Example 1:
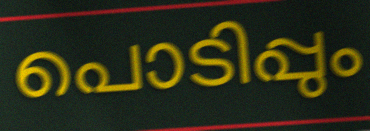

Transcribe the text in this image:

പൊടിപ്പും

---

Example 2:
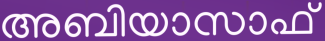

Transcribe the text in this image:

അബിയാസാഫ്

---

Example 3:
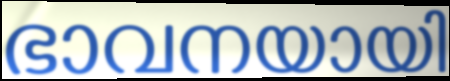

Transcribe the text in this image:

ഭാവനയായി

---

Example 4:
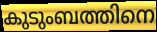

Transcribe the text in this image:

കുടുംബത്തിനെ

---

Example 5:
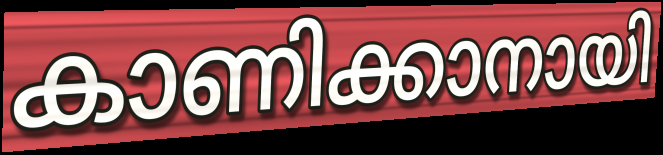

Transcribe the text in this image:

കാണിക്കാനായി